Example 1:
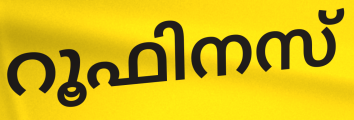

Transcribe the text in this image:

റൂഫിനസ്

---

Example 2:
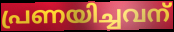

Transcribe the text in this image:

പ്രണയിച്ചവന്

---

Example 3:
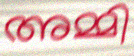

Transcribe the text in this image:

അമ്മി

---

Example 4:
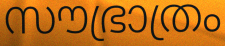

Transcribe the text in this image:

സൗഭ്രാത്രം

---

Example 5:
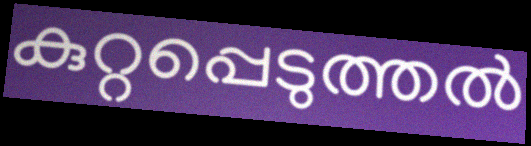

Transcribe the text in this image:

കുറ്റപ്പെടുത്തൽ